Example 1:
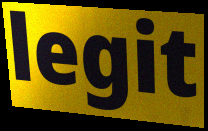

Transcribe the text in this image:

legit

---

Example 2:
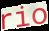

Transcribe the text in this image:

rio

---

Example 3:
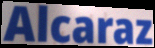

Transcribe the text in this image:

Alcaraz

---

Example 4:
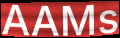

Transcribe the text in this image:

AAMs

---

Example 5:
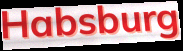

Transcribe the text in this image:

Habsburg